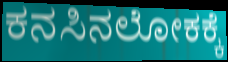
ಕನಸಿನಲೋಕಕ್ಕೆ